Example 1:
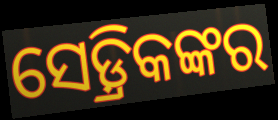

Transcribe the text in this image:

ସେଡ଼୍ରିକଙ୍କର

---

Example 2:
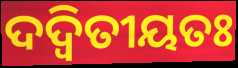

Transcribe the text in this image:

ଦଦ୍ୱିତୀୟତଃ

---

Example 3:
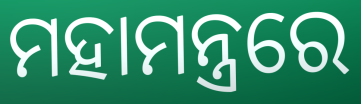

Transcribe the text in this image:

ମହାମନ୍ତ୍ରରେ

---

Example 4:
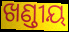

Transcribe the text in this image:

ଖଣ୍ଡୀୟ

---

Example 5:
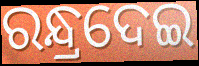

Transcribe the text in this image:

ରନ୍ଧ୍ରଦେଇ